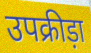
उपक्रीड़ा